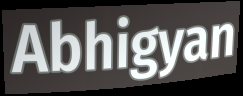
Abhigyan